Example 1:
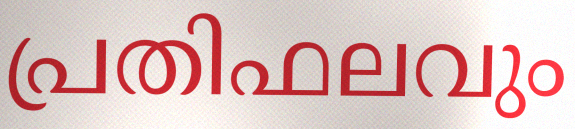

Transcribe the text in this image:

പ്രതിഫലവും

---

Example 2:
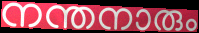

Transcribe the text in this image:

നന്തനാരും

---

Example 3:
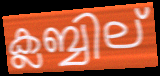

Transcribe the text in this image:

ക്ലബ്ബില്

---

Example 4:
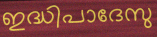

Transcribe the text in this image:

ഇദ്ധിപാദേസു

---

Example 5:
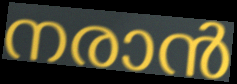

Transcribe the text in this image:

നരാൻ